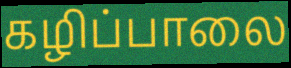
கழிப்பாலை